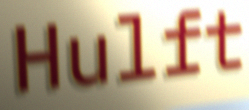
Hulft